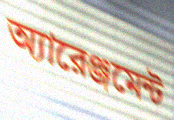
অ্যারেঞ্জমেন্ট